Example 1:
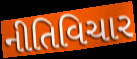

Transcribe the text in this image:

નીતિવિચાર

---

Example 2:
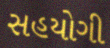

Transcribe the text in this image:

સહયોગી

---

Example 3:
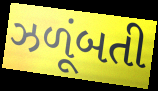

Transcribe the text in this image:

ઝળૂંબતી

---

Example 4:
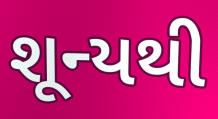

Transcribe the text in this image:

શૂન્યથી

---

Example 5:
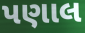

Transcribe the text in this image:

પણાલ